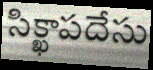
సిక్ఖాపదేసు